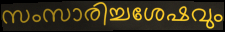
സംസാരിച്ചശേഷവും